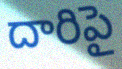
దారిపై